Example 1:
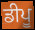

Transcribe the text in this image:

ਡੀਪੂ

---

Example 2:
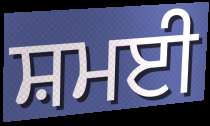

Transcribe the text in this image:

ਸ਼ਮਈ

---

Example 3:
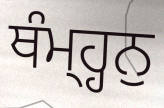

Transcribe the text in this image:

ਥੰਮ੍ਹ੍ਹਨੁ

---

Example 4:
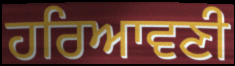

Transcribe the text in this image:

ਹਰਿਆਵਣੀ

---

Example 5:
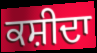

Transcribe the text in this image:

ਕਸ਼ੀਦਾ